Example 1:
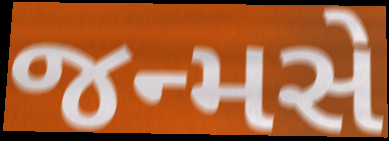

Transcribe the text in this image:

જન્મસે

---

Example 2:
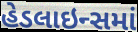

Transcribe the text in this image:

હેડલાઇન્સમાં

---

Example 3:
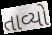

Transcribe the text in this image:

તાવ્યો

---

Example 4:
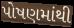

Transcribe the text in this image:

પોષણમાંથી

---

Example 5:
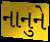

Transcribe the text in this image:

નાનુને